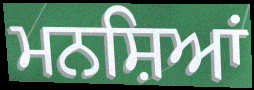
ਮਨਸ਼ਿਆਂ